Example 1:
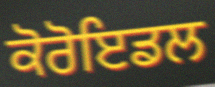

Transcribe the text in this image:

ਕੋਰੋਇਡਲ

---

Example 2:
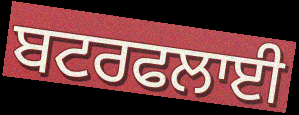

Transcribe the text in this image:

ਬਟਰਫਲਾਈ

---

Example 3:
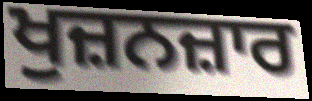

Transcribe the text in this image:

ਖੁਜ਼ਨਜ਼ਾਰ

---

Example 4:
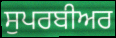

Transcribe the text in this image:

ਸੁਪਰਬੀਅਰ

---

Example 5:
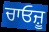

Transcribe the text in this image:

ਚਾਓਜ਼ੂ